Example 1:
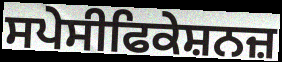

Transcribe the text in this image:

ਸਪੇਸੀਫਿਕੇਸ਼ਨਜ਼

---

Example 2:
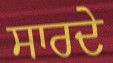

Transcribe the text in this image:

ਸਾਰਦੇ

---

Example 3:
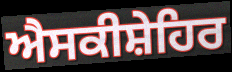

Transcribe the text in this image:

ਐਸਕੀਸ਼ੇਹਿਰ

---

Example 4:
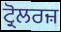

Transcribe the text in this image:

ਟ੍ਰੋਲਰਜ਼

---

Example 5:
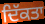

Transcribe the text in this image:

ਦਿੱਕਤਾ